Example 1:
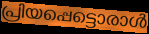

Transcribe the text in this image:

പ്രിയപ്പെട്ടൊരാൾ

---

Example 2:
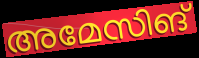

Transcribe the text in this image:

അമേസിങ്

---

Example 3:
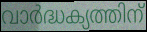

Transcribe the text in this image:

വാർദ്ധക്യത്തിന്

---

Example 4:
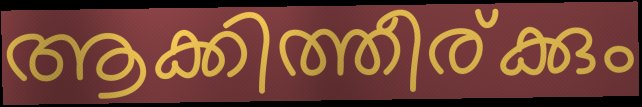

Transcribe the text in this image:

ആക്കിത്തീര്ക്കും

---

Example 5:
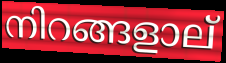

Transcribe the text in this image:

നിറങ്ങളാല്